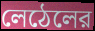
লেঠেলের